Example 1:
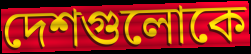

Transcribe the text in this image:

দেশগুলোকে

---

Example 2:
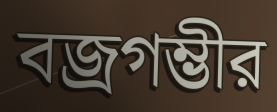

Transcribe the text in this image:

বজ্রগম্ভীর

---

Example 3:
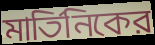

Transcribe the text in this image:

মার্তিনিকের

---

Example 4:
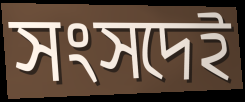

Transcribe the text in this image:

সংসদেই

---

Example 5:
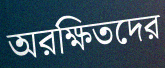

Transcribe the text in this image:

অরক্ষিতদের